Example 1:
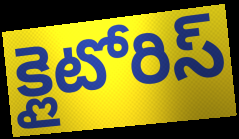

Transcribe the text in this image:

క్లైటోరిస్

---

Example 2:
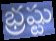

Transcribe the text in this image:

భ్రష్టు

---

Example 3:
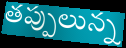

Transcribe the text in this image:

తప్పులున్న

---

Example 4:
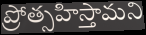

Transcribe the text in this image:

ప్రోత్సహిస్తామని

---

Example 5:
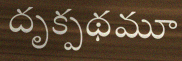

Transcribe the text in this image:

దృక్పథమూ